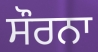
ਸੌਰਨਾ